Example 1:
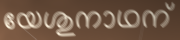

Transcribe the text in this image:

യേശുനാഥന്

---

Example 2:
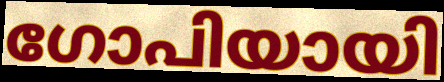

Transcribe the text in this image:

ഗോപിയായി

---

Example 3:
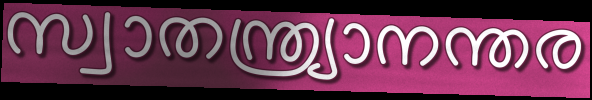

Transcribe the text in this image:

സ്വാതന്ത്ര്യാനന്തര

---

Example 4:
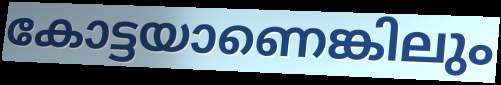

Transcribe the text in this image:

കോട്ടയാണെങ്കിലും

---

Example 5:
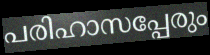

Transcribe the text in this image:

പരിഹാസപ്പേരും